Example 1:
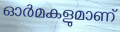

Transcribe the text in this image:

ഓർമകളുമാണ്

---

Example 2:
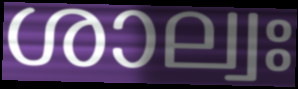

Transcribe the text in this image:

ശാല്വഃ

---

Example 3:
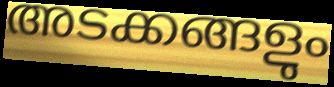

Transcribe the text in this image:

അടക്കങ്ങളും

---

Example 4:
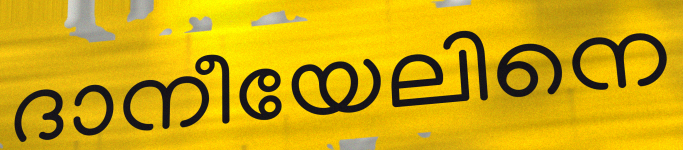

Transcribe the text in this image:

ദാനീയേലിനെ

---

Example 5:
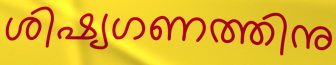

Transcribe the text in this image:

ശിഷ്യഗണത്തിനു